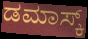
ಡಮಾಸ್ಕ್